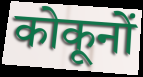
कोकूनों